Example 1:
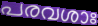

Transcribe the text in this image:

പരവശാഃ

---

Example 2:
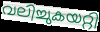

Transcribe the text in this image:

വലിച്ചുകയറ്റി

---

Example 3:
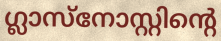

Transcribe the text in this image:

ഗ്ലാസ്നോസ്റ്റിന്റെ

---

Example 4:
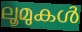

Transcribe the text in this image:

ലൂമുകൾ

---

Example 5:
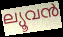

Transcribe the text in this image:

ല്യൂവൻ